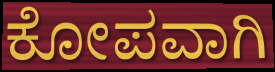
ಕೋಪವಾಗಿ